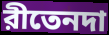
রীতেনদা